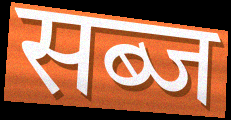
सब्ज